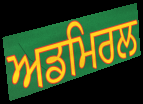
ਅਡਮਿਰਲ